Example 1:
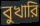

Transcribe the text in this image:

বুখারি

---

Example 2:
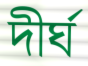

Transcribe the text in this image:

দীর্ঘ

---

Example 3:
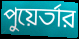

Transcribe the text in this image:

পুয়ের্তার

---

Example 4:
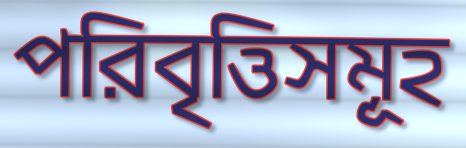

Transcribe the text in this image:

পরিবৃত্তিসমূহ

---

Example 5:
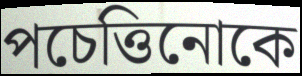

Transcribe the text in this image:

পচেত্তিনোকে